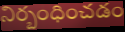
నిర్బంధించడం